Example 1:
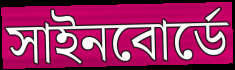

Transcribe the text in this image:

সাইনবোর্ডে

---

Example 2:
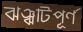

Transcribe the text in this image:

ঝঞ্ঝাটপূর্ণ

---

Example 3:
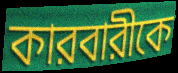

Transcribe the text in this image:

কারবারীকে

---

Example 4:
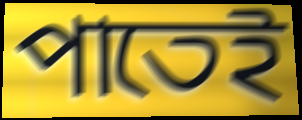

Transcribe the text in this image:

পাতেই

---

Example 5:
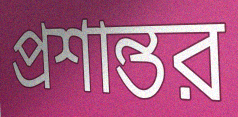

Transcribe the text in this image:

প্রশান্তর